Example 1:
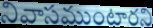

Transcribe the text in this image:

నివాసముంటారని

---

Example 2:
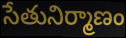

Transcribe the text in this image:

సేతునిర్మాణం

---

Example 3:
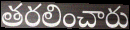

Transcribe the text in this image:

తరలించారు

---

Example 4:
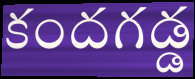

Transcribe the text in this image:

కందగడ్డ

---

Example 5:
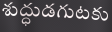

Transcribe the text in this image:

శుద్ధుడగుటకు